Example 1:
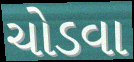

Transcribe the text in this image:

ચોડવા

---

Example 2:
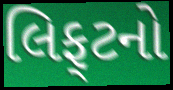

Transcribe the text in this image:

લિફ્‌ટનો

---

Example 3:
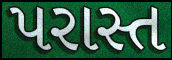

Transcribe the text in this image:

પરાસ્ત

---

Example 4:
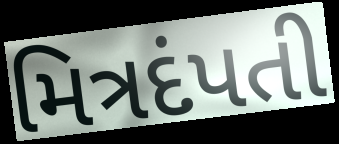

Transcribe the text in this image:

મિત્રદંપતી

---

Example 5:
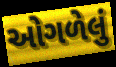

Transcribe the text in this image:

ઓગળેલું